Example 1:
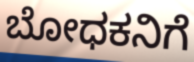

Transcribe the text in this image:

ಬೋಧಕನಿಗೆ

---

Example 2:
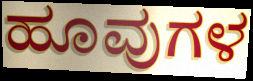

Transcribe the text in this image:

ಹೂವುಗಳ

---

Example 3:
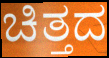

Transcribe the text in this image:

ಚಿತ್ತದ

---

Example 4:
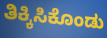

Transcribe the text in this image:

ತಿಕ್ಕಿಸಿಕೊಂಡು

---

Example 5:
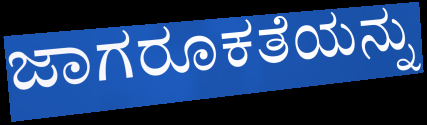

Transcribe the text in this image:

ಜಾಗರೂಕತೆಯನ್ನು